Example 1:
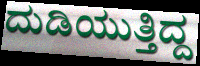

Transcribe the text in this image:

ದುಡಿಯುತ್ತಿದ್ದ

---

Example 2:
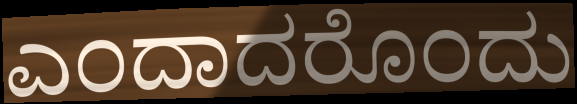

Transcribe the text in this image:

ಎಂದಾದರೊಂದು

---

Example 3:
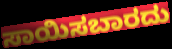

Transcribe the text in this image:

ಸಾಯಿಸಬಾರದು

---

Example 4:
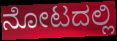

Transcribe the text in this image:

ನೋಟದಲ್ಲಿ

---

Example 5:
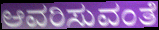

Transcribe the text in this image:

ಆವರಿಸುವಂತೆ